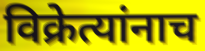
विक्रेत्यांनाच